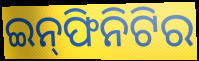
ଇନ୍‌ଫିନିଟିର